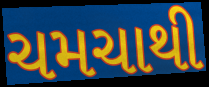
ચમચાથી